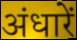
अंधारें